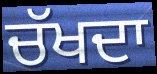
ਚੱਖਦਾ